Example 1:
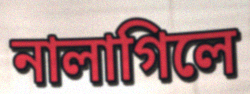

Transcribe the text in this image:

নালাগিলে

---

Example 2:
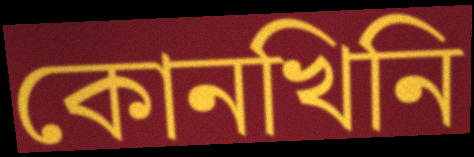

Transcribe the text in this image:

কোনখিনি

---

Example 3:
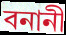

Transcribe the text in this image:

বনানী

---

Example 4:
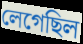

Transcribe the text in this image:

লেগেছিল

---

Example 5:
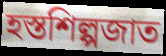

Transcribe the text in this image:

হস্তশিল্পজাত